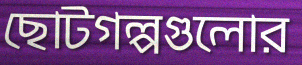
ছোটগল্পগুলোর